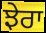
ਝੇਰਾ